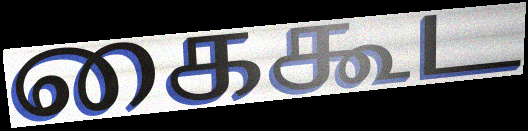
கைகூட